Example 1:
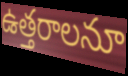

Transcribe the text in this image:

ఉత్తరాలనూ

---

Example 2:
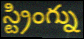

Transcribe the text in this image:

స్ట్రింగ్ను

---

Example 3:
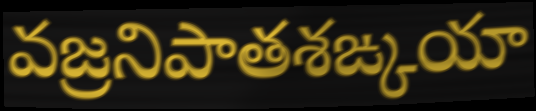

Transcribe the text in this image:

వజ్రనిపాతశఙ్కయా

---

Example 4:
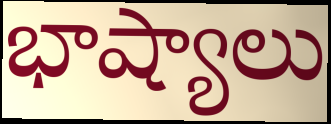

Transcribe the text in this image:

భాష్యాలు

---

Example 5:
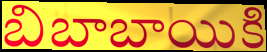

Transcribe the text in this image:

బిబాబాయికి